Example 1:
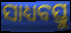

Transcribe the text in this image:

ସାଧ୍ୟବସ୍ତୁ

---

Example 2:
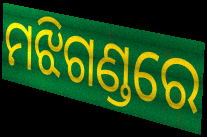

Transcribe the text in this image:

ମଝିଗଣ୍ଡରେ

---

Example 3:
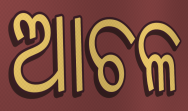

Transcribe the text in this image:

ଆଚଳ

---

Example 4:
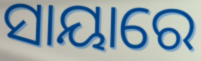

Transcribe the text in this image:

ସାୟାରେ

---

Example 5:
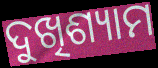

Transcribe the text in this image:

ଦୁଖିଶ୍ୟାମ